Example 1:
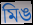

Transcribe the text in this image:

মিঙ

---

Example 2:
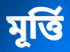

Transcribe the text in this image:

মূর্ত্তি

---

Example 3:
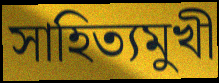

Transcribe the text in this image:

সাহিত্যমুখী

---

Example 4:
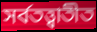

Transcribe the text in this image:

সর্বতত্ত্বাতীত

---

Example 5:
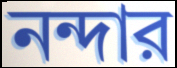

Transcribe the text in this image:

নন্দার